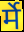
र्मे